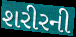
શરીરની